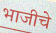
भाजीचे